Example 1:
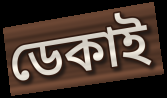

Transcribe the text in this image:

ডেকাই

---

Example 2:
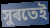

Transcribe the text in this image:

সুৰতেই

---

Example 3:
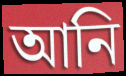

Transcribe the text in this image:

আনি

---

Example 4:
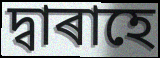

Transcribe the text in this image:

দ্বাৰাহে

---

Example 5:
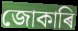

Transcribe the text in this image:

জোকাৰি